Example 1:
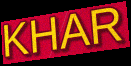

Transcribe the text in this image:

KHAR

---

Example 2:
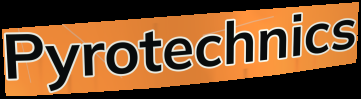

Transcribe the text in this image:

Pyrotechnics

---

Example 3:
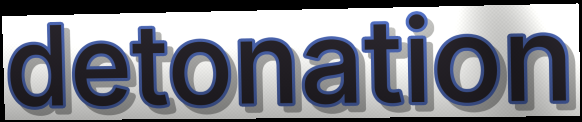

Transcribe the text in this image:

detonation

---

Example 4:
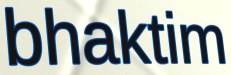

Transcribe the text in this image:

bhaktim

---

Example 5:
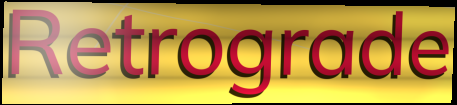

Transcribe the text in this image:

Retrograde